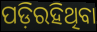
ପଡ଼ିରହିଥିବା